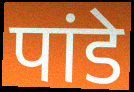
पांडे